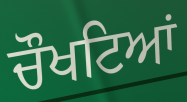
ਚੌਖਟਿਆਂ